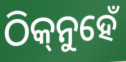
ଠିକ୍‌ନୁହେଁ